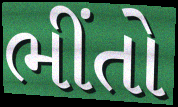
ભીંતો